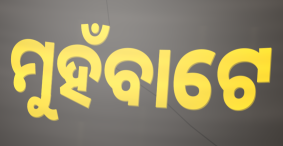
ମୁହଁବାଟେ